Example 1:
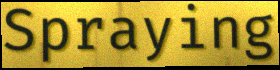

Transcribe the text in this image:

Spraying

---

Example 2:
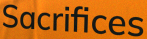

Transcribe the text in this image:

Sacrifices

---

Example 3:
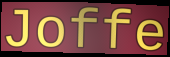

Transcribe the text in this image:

Joffe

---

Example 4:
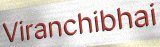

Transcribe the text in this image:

Viranchibhai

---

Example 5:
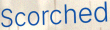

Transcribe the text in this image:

Scorched